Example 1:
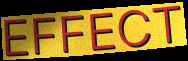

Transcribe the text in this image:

EFFECT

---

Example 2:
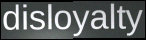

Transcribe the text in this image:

disloyalty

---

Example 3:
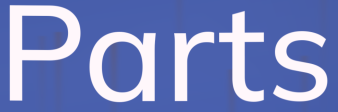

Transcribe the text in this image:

Parts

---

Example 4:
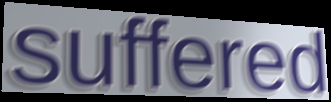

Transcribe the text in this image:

suffered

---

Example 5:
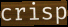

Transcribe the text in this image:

crisp